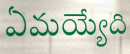
ఏమయ్యేది